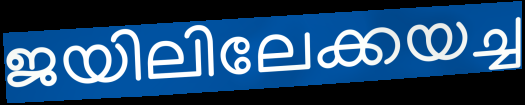
ജയിലിലേക്കയച്ച